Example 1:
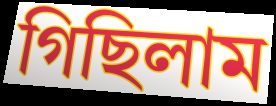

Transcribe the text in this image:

গিছিলাম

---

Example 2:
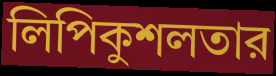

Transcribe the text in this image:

লিপিকুশলতার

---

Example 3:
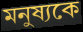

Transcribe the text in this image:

মনুষ্যকে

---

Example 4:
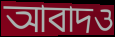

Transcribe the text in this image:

আবাদও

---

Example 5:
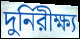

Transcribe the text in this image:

দুর্নিরীক্ষ্য